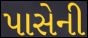
પાસેની